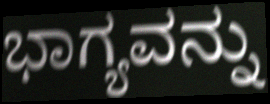
ಭಾಗ್ಯವನ್ನು